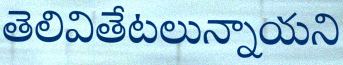
తెలివితేటలున్నాయని